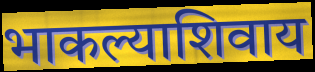
भाकल्याशिवाय